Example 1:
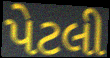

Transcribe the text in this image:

પેટલી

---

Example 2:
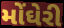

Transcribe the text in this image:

મોંઘેરી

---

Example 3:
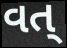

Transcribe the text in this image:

વત્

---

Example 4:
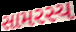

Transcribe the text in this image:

સામરસ્ય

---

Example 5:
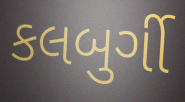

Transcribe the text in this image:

કલબુર્ગી